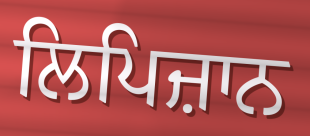
ਲਿਪਿਜ਼ਾਨ